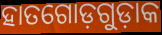
ହାତଗୋଡ଼ଗୁଡ଼ାକ